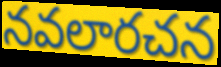
నవలారచన